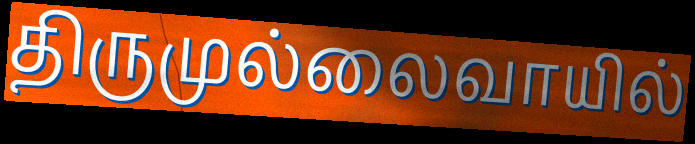
திருமுல்லைவாயில்